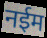
नईम